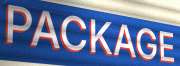
PACKAGE